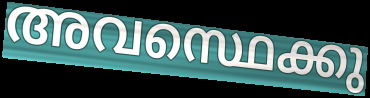
അവസ്ഥെക്കു